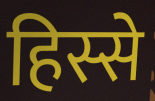
हिस्‍से